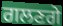
ਗਲਣਗੇ